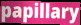
papillary